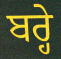
ਬਰ੍ਹੇ